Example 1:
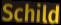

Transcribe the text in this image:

Schild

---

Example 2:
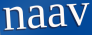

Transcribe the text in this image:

naav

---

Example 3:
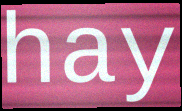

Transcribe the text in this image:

hay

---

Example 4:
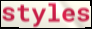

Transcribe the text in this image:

styles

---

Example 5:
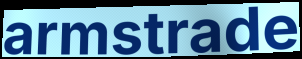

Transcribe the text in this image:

armstrade